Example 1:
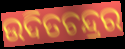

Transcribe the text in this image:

ଉଦିତଚନ୍ଦ୍ରର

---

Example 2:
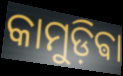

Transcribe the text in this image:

କାମୁଡ଼ିଵା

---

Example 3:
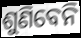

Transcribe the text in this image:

ଶୁଣିବେନି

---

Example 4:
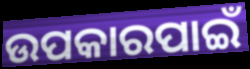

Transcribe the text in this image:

ଉପକାରପାଇଁ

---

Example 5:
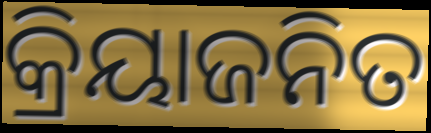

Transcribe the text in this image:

କ୍ରିୟାଜନିତ